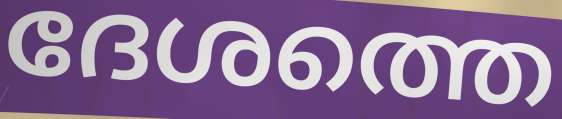
ദേശത്തെ